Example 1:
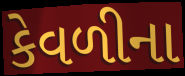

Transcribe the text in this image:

કેવળીના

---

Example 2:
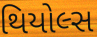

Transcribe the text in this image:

થિયોલ્સ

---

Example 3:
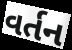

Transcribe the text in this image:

વર્તન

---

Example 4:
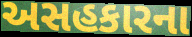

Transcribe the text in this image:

અસહકારના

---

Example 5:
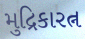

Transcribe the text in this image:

મુદ્રિકારત્ન